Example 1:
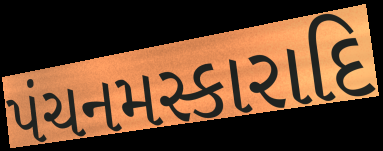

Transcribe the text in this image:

પંચનમસ્કારાદિ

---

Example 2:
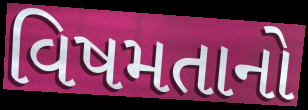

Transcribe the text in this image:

વિષમતાનો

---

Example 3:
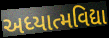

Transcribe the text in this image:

અધ્યાત્મવિદ્યા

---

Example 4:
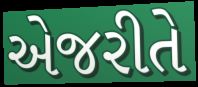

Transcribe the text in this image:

એજરીતે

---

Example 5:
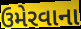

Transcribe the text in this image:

ઉમેરવાના